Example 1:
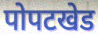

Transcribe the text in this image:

पोपटखेड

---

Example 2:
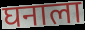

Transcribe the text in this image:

घनाला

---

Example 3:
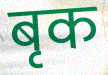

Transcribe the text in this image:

बृक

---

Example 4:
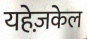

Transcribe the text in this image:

यहेज़केल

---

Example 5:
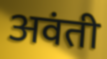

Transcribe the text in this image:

अवंती